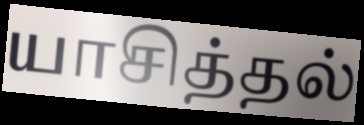
யாசித்தல்